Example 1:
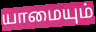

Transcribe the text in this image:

யாமையும்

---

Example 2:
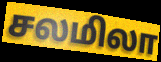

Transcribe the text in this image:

சலமிலா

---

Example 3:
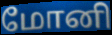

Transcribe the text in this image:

மோனி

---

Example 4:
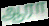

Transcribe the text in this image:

ஆரா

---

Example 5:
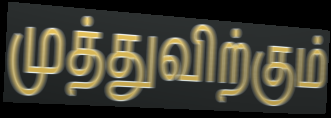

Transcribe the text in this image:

முத்துவிற்கும்